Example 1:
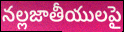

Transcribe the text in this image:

నల్లజాతీయులపై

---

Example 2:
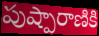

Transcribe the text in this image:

పుష్పారాణికి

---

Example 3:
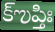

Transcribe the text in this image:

క్ఌప్తిః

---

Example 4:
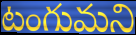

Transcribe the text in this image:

టంగుమని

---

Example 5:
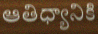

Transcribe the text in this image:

ఆతిధ్యానికి